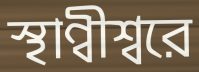
স্থাণ্বীশ্বরে